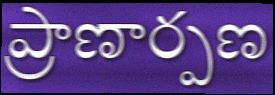
ప్రాణార్పణ